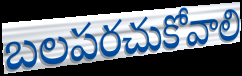
బలపరచుకోవాలి